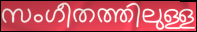
സംഗീതത്തിലുള്ള